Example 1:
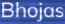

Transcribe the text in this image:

Bhojas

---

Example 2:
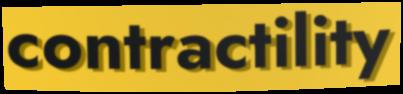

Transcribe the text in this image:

contractility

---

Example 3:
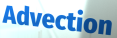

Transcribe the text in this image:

Advection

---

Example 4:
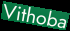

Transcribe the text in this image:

Vithoba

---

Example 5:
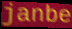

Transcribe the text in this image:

janbe